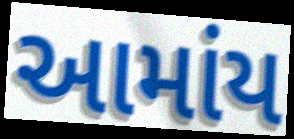
આમાંય